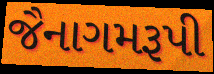
જૈનાગમરૂપી